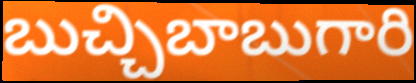
బుచ్చిబాబుగారి